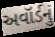
અવૉર્ડનું